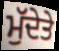
ਮੁੱਦੇਤੇ